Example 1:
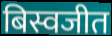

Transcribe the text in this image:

बिस्वजीत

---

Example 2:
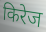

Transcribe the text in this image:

किरेज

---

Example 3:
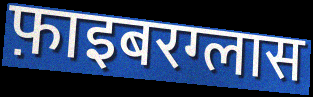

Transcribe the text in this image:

फ़ाइबरग्लास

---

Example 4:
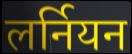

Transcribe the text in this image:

लर्नियन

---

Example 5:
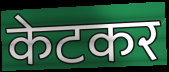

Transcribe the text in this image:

केटकर